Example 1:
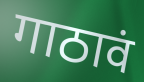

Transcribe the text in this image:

गाठावं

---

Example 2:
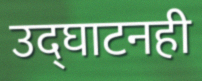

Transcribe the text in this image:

उद्घाटनही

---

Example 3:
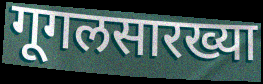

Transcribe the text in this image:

गूगलसारख्या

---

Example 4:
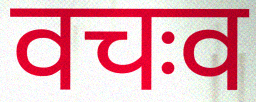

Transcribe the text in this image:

वचःव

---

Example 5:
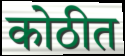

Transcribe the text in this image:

कोठीत